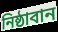
নিষ্ঠাবান